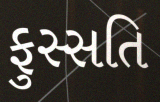
ફુસ્સતિ